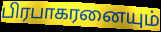
பிரபாகரனையும்